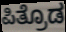
ಪಿತ್ರೊಡ